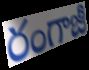
రంగాజీ